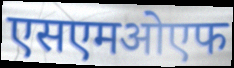
एसएमओएफ